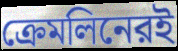
ক্রেমলিনেরই